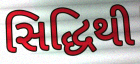
સિદ્ધિથી